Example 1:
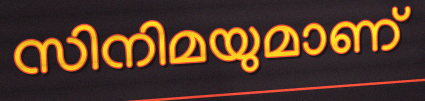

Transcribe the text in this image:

സിനിമയുമാണ്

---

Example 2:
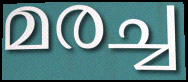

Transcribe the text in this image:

മരച്ച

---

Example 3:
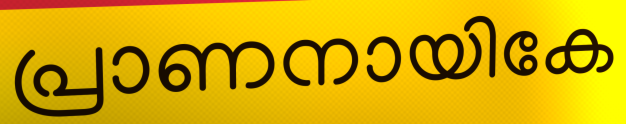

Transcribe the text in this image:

പ്രാണനായികേ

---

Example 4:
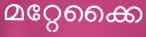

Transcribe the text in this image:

മറ്റേക്കൈ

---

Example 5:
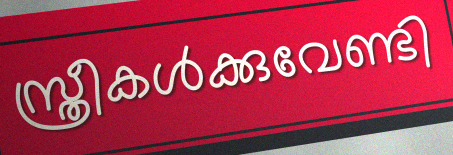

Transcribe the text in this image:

സ്ത്രീകൾക്കുവേണ്ടി